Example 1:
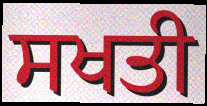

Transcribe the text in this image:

ਸਖਤੀ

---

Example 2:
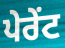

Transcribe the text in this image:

ਪੇਰੇਂਟ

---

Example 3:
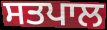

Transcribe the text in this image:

ਸਤਪਾਲ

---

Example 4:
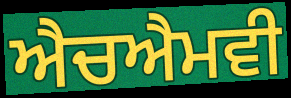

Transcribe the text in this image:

ਐਚਐਮਵੀ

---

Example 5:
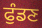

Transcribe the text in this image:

ਫੁੰਡਣ